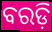
ବରଡ଼ି